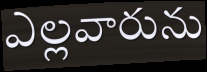
ఎల్లవారును